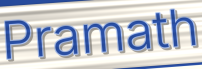
Pramath